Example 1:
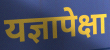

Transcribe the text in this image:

यज्ञापेक्षा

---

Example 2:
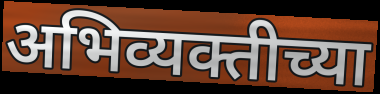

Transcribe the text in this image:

अभिव्यक्तीच्या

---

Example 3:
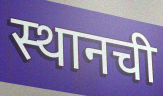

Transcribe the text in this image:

स्थानची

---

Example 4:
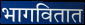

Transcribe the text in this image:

भागवितात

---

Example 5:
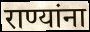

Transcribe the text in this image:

राण्यांना